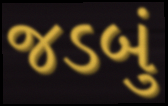
જડબું